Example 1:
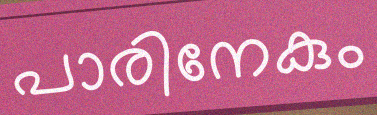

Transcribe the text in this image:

പാരിനേകും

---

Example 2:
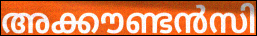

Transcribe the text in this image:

അക്കൗണ്ടൻസി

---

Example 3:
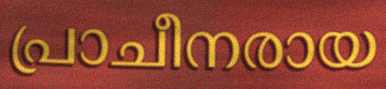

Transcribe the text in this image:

പ്രാചീനരായ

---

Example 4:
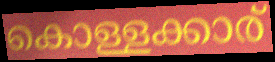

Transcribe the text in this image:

കൊള്ളക്കാര്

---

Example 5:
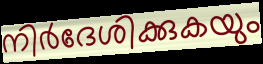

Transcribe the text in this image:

നിർദേശിക്കുകയും